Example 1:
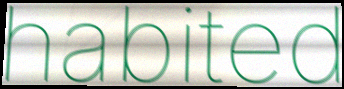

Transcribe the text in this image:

habited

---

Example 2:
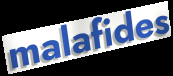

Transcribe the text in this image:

malafides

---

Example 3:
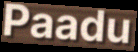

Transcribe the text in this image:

Paadu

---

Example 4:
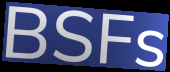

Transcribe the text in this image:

BSFs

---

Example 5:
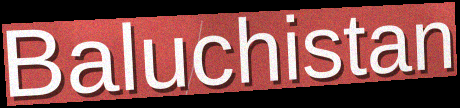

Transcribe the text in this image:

Baluchistan